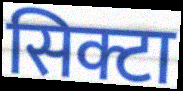
सिक्टा